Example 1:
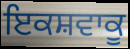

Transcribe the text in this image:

ਇਕਸ਼ਵਾਕੂ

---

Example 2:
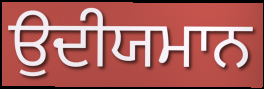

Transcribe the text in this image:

ਉਦੀਯਮਾਨ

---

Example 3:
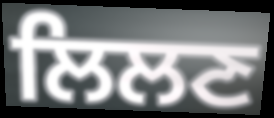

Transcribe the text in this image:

ਲਿਲਣ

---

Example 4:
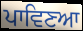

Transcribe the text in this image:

ਪਾਵਿਣਆ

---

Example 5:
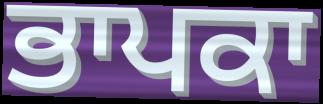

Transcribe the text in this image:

ਭਾਪਕਾ